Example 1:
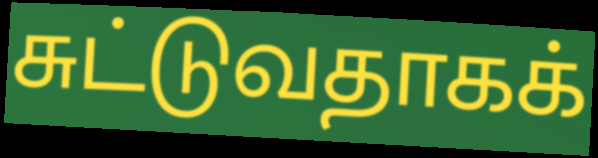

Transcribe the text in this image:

சுட்டுவதாகக்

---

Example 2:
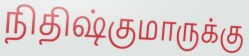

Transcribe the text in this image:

நிதிஷ்குமாருக்கு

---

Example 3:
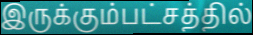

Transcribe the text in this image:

இருக்கும்பட்சத்தில்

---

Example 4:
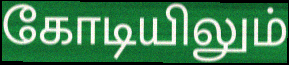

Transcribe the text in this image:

கோடியிலும்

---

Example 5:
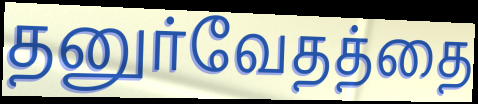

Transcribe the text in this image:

தனுர்வேதத்தை